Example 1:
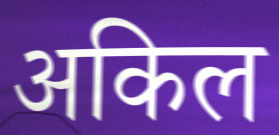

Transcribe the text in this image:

अकिल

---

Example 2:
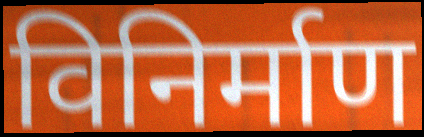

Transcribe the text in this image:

विनिर्माण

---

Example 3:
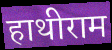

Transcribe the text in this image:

हाथीराम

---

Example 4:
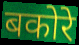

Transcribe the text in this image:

बकोरे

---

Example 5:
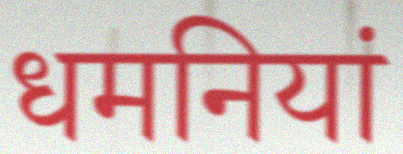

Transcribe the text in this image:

धमनियां